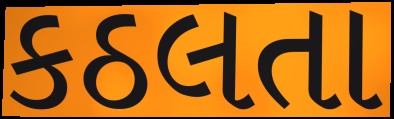
કઠલતા